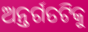
ଅନ୍ତର୍ଗତଟିକୁ